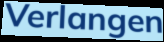
Verlangen